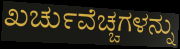
ಖರ್ಚುವೆಚ್ಚಗಳನ್ನು